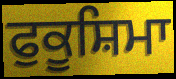
ਫੁਕੂਸ਼ਿਮਾ